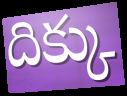
దిక్కు